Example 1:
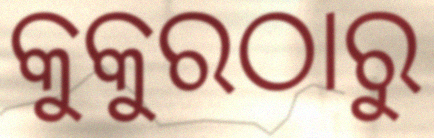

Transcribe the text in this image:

କୁକୁରଠାରୁ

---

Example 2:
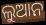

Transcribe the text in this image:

ଲୁଆନ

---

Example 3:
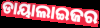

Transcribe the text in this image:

ଡାୟାଲାଇଜର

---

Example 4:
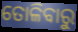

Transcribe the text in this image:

ତୋଳିବାରୁ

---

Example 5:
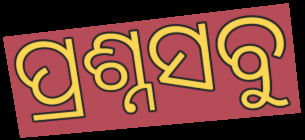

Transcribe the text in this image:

ପ୍ରଶ୍ନସବୁ